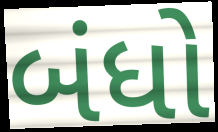
બંધો